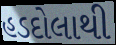
હડદોલાથી